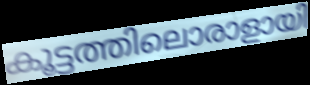
കൂട്ടത്തിലൊരാളായി